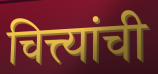
चित्त्यांची